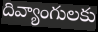
దివ్యాంగులకు